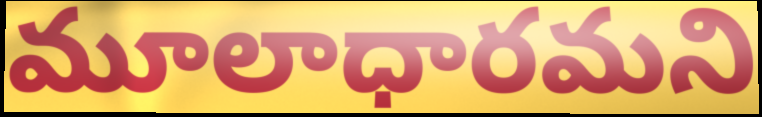
మూలాధారమని